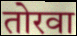
तोरवा